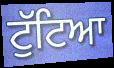
ਟੁੱਟਿਆ